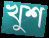
খুশ